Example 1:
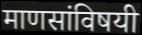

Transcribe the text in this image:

माणसांविषयी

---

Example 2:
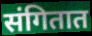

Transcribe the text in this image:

संगितात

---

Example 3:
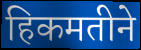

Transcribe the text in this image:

हिकमतीने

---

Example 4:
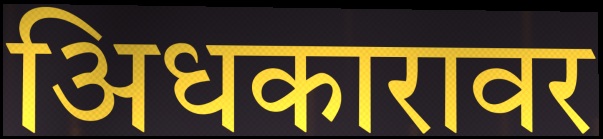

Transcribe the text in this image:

अिधकारावर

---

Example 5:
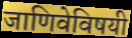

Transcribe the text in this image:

जाणिवेविषयी